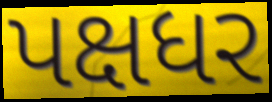
પક્ષધર